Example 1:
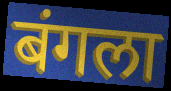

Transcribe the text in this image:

बंगला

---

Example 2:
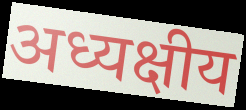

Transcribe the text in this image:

अध्यक्षीय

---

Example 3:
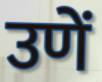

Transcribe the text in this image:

उणें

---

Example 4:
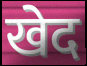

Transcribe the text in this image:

खेद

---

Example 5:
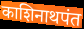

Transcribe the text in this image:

काशिनाथपंत